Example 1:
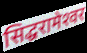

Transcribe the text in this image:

सिद्धरामेश्वर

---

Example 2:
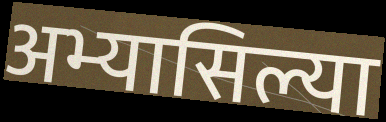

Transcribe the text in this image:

अभ्यासिल्या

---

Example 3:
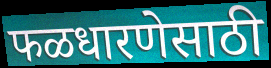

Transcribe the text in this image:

फळधारणेसाठी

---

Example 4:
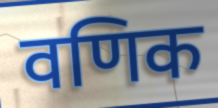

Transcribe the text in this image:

वणिक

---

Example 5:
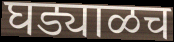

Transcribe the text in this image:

घड्याळच